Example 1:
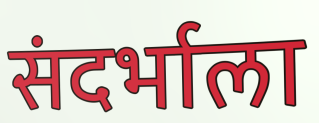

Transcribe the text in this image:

संदर्भाला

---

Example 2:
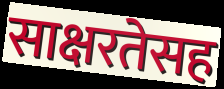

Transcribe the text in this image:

साक्षरतेसह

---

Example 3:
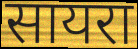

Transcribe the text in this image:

सायरा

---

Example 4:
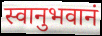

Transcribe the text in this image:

स्वानुभवानं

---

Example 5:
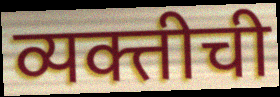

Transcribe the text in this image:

व्यक्तीची